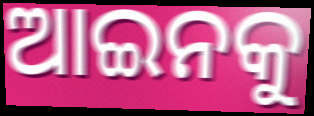
ଆଇନକୁ